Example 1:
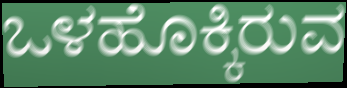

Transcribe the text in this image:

ಒಳಹೊಕ್ಕಿರುವ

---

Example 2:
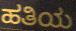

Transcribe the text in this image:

ಹತಿಯ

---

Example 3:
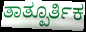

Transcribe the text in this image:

ತಾತ್ಪೂರ್ತಿಕ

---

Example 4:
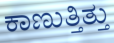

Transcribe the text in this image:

ಕಾಣುತ್ತಿತ್ತು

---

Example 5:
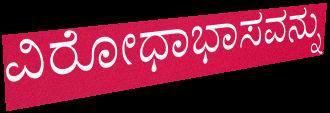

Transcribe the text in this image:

ವಿರೋಧಾಭಾಸವನ್ನು